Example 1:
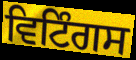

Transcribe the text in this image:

ਵਿਟਿੰਗਸ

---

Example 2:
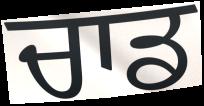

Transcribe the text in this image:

ਚਾਡ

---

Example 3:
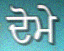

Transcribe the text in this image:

ਦੋਮੇ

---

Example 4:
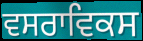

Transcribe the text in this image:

ਵਸਰਾਵਿਕਸ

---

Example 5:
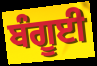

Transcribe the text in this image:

ਬੰਗੂਈ